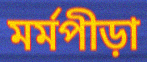
মর্মপীড়া